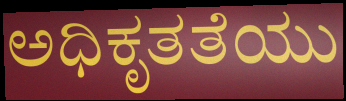
ಅಧಿಕೃತತೆಯು